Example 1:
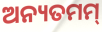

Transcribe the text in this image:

ଅନ୍ୟତମମ୍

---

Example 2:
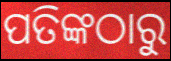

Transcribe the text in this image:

ପତିଙ୍କଠାରୁ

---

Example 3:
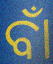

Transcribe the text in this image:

ବାଁ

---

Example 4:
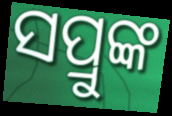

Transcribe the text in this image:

ସପ୍ରୁଙ୍କ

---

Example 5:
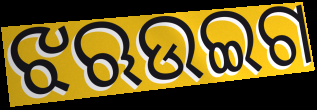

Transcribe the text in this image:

ଝଋଉଇଗ